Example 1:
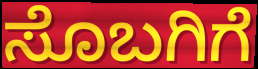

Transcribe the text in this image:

ಸೊಬಗಿಗೆ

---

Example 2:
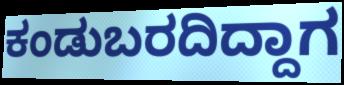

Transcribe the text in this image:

ಕಂಡುಬರದಿದ್ದಾಗ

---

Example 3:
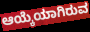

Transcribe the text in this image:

ಆಯ್ಕೆಯಾಗಿರುವ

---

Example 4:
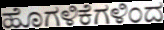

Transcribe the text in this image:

ಹೊಗಳಿಕೆಗಳಿಂದ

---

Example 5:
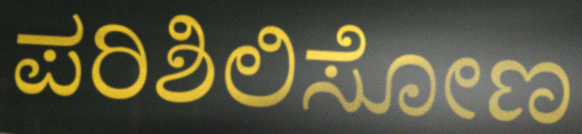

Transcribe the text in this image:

ಪರಿಶಿಲಿಸೋಣ